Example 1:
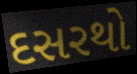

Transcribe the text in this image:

દસરથો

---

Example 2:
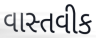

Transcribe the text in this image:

વાસ્તવીક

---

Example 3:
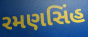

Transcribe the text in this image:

રમણસિંહ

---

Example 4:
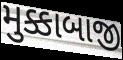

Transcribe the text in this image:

મુક્કાબાજી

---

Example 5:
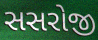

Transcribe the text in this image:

સસરોજી